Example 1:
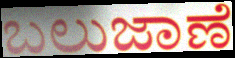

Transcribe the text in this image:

ಬಲುಜಾಣೆ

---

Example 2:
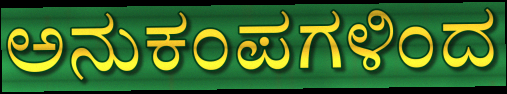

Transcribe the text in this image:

ಅನುಕಂಪಗಳಿಂದ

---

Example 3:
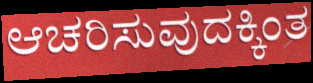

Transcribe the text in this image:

ಆಚರಿಸುವುದಕ್ಕಿಂತ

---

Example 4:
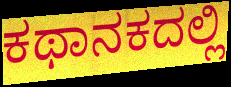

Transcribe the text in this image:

ಕಥಾನಕದಲ್ಲಿ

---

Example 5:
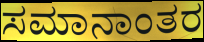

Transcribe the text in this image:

ಸಮಾನಾಂತರ